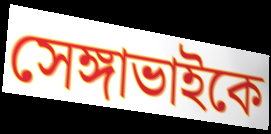
সেঙ্গাভাইকে